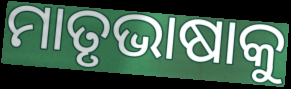
ମାତୃଭାଷାକୁ